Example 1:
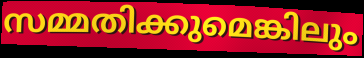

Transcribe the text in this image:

സമ്മതിക്കുമെങ്കിലും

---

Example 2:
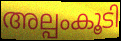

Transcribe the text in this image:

അല്പംകൂടി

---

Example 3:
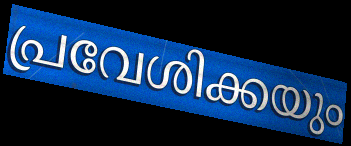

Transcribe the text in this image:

പ്രവേശിക്കയും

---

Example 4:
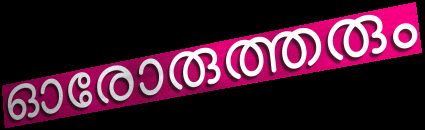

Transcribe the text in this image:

ഓരോരുത്തരും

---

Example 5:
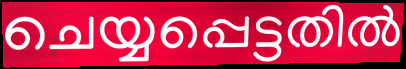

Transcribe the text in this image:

ചെയ്യപ്പെട്ടതിൽ